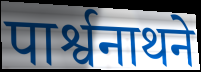
पार्श्वनाथने